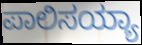
ಪಾಲಿಸಯ್ಯಾ